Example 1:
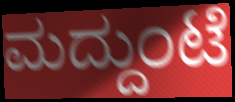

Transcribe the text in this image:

ಮದ್ದುಂಟೆ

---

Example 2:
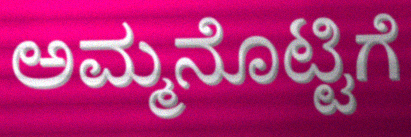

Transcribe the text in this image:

ಅಮ್ಮನೊಟ್ಟಿಗೆ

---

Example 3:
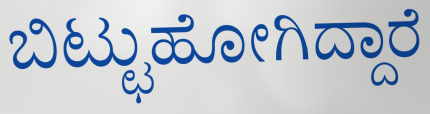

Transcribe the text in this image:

ಬಿಟ್ಟುಹೋಗಿದ್ದಾರೆ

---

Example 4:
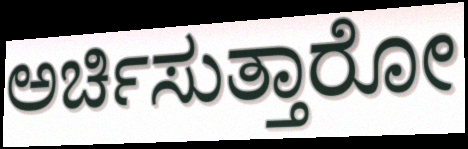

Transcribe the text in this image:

ಅರ್ಚಿಸುತ್ತಾರೋ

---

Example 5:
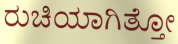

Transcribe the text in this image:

ರುಚಿಯಾಗಿತ್ತೋ